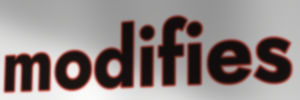
modifies